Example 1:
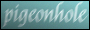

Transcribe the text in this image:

pigeonhole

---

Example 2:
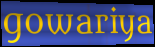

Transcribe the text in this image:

gowariya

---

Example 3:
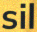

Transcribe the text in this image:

sil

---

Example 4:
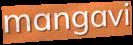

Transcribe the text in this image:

mangavi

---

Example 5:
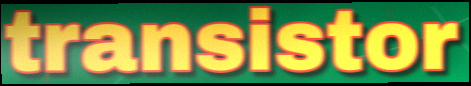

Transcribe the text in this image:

transistor